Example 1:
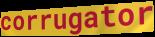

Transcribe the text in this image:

corrugator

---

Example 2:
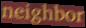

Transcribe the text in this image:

neighbor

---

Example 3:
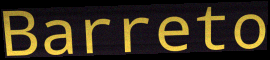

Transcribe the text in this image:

Barreto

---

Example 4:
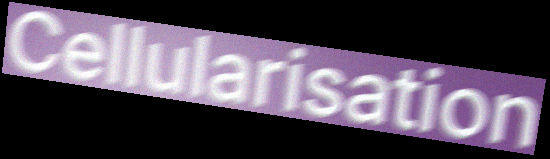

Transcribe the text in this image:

Cellularisation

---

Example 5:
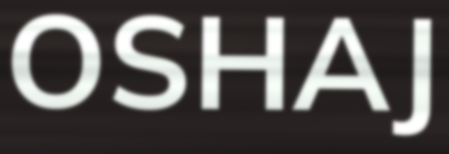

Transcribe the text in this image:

OSHAJ